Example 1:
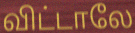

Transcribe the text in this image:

விட்டாலே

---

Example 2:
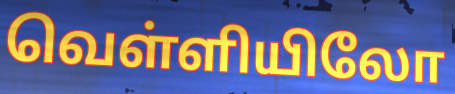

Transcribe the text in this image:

வெள்ளியிலோ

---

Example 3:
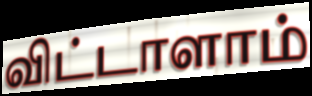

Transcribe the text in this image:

விட்டாளாம்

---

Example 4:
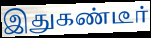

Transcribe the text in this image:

இதுகண்டீர்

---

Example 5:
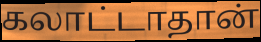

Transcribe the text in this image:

கலாட்டாதான்